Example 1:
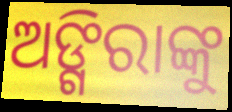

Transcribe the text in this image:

ଅଙ୍ଗିରାଙ୍କୁ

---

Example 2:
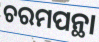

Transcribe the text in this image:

ଚରମପନ୍ଥା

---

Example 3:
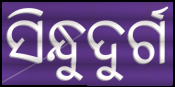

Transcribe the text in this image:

ସିନ୍ଧୁଦୁର୍ଗ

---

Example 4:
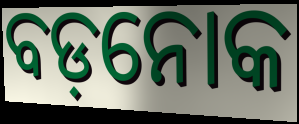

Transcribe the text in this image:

ବଡ଼ନୋକ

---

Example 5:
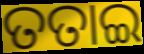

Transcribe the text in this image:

ତତାଇ